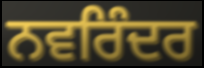
ਨਵਰਿੰਦਰ